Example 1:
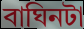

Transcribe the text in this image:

বাঘিনটা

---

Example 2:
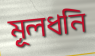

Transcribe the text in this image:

মূলধনি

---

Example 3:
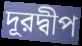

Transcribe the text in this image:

দূরদ্বীপ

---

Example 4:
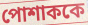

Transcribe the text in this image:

পোশাককে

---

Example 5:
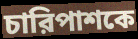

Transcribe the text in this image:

চারিপাশকে